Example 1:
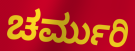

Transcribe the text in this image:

ಚರ್ಮುರಿ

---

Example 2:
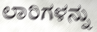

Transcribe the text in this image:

ಲಾರಿಗಳನ್ನು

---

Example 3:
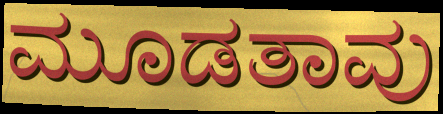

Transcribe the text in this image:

ಮೂಡತಾವು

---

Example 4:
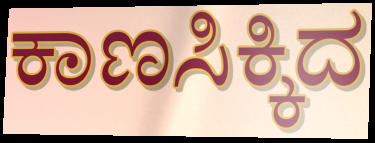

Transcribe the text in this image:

ಕಾಣಸಿಕ್ಕಿದ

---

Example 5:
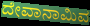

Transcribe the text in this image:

ದೇವಾನಾಮಿವ